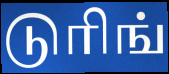
டுரிங்